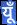
यूँ